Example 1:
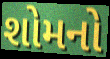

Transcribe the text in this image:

શોમનો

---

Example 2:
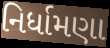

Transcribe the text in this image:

નિર્ધામણા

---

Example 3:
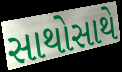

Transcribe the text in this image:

સાથોસાથે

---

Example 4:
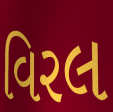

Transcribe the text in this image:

વિરલ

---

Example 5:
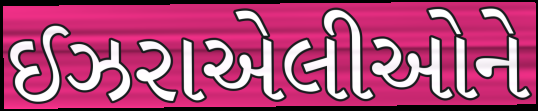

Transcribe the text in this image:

ઈઝરાએલીઓને